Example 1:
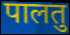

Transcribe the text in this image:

पालतु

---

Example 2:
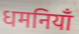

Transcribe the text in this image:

धमनियाँ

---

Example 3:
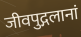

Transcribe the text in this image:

जीवपुद्गलानां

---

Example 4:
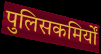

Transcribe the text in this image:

पुलिसकमिर्यों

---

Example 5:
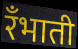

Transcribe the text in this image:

रँभाती